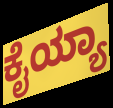
ಕೈಯ್ಯಾ